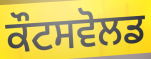
ਕੌਟਸਵੋਲਡ